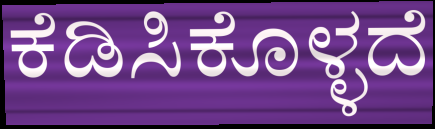
ಕೆಡಿಸಿಕೊಳ್ಳದೆ